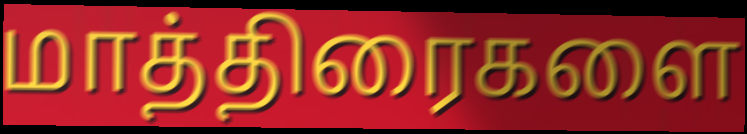
மாத்திரைகளை